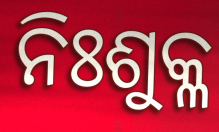
ନିଃଶୁକ୍ଳ